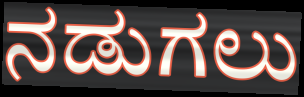
ನಡುಗಲು